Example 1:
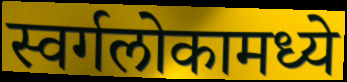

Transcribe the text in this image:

स्वर्गलोकामध्ये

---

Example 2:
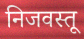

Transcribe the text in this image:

निजवस्तू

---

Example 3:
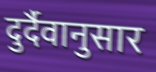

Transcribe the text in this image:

दुर्दैवानुसार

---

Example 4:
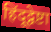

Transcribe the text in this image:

हिंदूद्वेष्टा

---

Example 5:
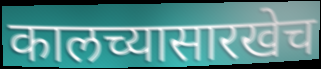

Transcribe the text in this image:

कालच्यासारखेच